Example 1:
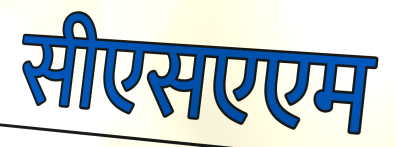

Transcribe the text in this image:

सीएसएएम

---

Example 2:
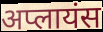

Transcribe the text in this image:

अप्लायंस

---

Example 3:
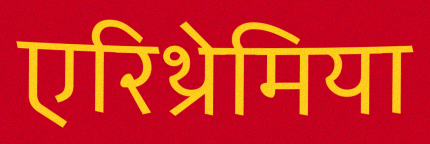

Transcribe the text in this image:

एरिथ्रेमिया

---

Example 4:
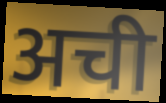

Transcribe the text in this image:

अची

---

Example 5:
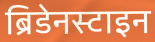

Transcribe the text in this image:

ब्रिडेनस्टाइन